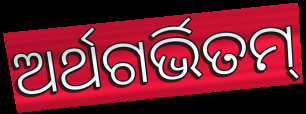
ଅର୍ଥଗର୍ଭିତମ୍